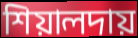
শিয়ালদায়